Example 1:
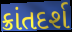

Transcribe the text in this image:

ક્રાંતદર્શ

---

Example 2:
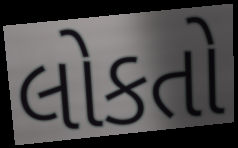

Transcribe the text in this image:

લોકતો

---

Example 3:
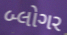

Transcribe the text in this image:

બ્લોગર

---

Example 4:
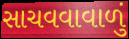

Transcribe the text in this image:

સાચવવાવાળું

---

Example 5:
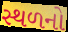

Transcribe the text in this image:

સ્થળનો